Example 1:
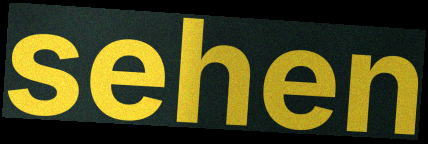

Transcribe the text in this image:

sehen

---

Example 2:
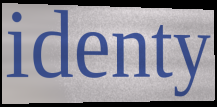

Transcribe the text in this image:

identy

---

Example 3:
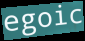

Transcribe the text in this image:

egoic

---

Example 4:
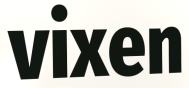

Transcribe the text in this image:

vixen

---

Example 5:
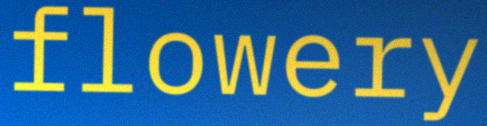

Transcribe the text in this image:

flowery